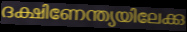
ദക്ഷിണേന്ത്യയിലേക്കു